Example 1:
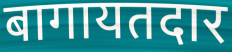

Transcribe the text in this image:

बागायतदार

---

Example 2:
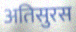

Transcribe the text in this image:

अतिसुरस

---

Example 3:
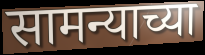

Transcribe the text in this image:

सामन्याच्या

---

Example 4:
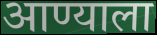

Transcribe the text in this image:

आण्याला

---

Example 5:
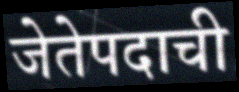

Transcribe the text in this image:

जेतेपदाची